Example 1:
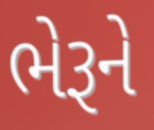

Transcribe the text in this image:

ભેરૂને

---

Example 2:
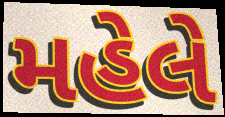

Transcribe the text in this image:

મહેલે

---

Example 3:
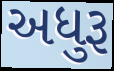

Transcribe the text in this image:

અધુરૂ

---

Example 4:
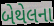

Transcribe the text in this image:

બેથેલના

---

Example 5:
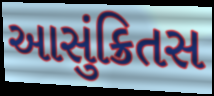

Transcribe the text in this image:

આસુંક્રિતસ